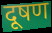
दूषण